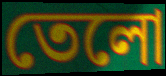
তেলো